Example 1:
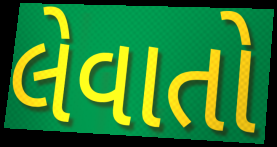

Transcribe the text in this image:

લેવાતો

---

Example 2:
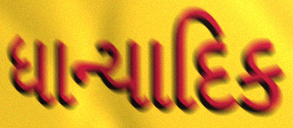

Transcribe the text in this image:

ધાન્યાદિક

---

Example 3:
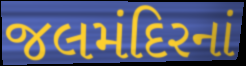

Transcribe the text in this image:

જલમંદિરનાં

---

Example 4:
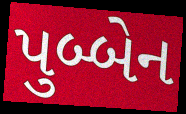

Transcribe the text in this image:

પુબ્બેન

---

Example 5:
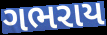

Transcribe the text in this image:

ગભરાય